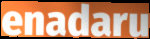
enadaru